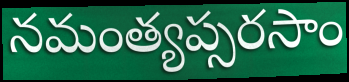
నమంత్యప్సరసాం